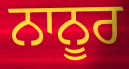
ਨਾਨੂਰ